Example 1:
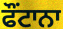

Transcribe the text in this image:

ਫੌਂਟਾਨਾ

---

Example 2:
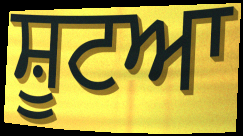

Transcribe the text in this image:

ਸ਼ੂਟਆ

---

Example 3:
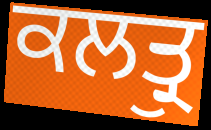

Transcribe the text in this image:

ਕਲਤ੍ਰੁ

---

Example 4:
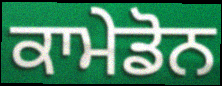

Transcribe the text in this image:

ਕਾਮੇਡੋਨ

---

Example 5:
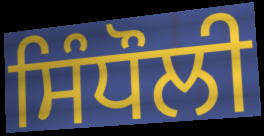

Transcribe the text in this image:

ਸਿੰਧੌਲੀ